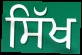
ਸਿੱਖ